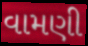
વામણી